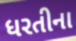
ધરતીના